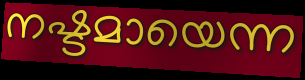
നഷ്ടമായെന്ന